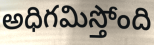
అధిగమిస్తోంది